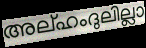
അല്ഹംദുലില്ലാ